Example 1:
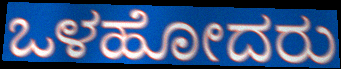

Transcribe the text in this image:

ಒಳಹೋದರು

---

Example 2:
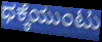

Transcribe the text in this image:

ಧಕ್ಕೆಯುಂಟು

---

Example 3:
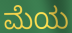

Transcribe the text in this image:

ಮೆಯ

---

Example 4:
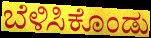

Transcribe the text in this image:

ಬೆಳಿಸಿಕೊಂಡು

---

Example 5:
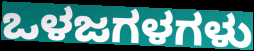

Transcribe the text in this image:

ಒಳಜಗಳಗಳು